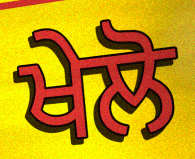
ਖੇਲੋ